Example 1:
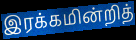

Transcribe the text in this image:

இரக்கமின்றித்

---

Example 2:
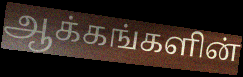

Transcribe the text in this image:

ஆக்கங்களின்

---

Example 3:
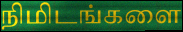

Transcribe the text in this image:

நிமிடங்களை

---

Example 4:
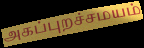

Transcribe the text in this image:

அகப்புறச்சமயம்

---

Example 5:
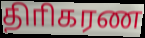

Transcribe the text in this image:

திரிகரண